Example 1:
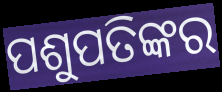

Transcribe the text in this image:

ପଶୁପତିଙ୍କର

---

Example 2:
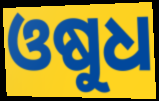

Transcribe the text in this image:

ଓଷୁଧ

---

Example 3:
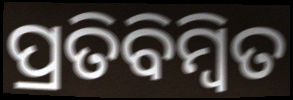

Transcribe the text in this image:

ପ୍ରତିବିମ୍ବିତ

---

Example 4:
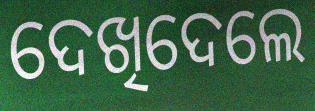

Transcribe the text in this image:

ଦେଖିଦେଲେ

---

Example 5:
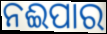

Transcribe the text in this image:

ନଈପାର